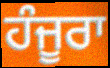
ਹੰਜੂਰਾ